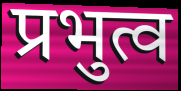
प्रभुत्व